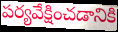
పర్యవేక్షించడానికి